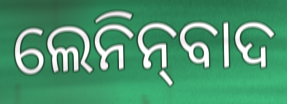
ଲେନିନ୍‌ବାଦ